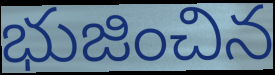
భుజించిన